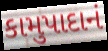
કામુપાદાનં